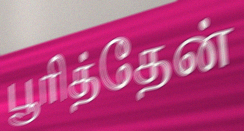
பூரித்தேன்